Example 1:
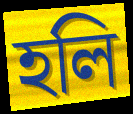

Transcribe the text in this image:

হলি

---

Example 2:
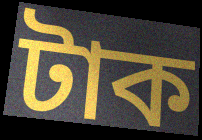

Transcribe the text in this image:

টাক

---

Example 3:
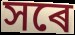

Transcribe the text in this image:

সৰে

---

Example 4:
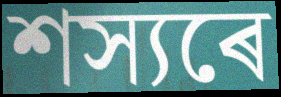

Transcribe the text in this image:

শস্যৰে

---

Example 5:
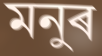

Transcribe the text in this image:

মনুৰ